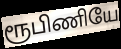
ரூபிணியே